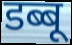
डब्बू